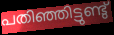
പതിഞ്ഞിട്ടുണ്ടു്